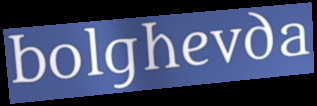
bolghevda